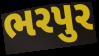
ભરપુર